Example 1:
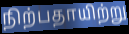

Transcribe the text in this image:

நிற்பதாயிற்று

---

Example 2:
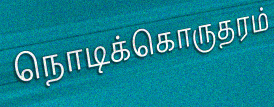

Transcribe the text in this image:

நொடிக்கொருதரம்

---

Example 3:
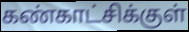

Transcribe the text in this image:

கண்காட்சிக்குள்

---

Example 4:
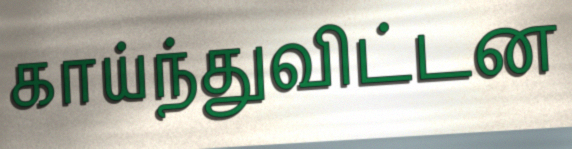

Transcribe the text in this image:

காய்ந்துவிட்டன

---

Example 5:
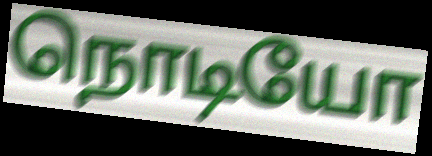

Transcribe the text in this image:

நொடியோ